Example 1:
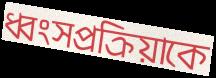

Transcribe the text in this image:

ধ্বংসপ্রক্রিয়াকে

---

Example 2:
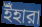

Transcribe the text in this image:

ইঁহারা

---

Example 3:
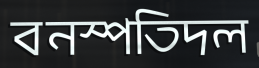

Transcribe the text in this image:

বনস্পতিদল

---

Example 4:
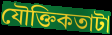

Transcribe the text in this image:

যৌক্তিকতাটা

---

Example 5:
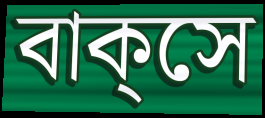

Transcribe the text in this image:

বাক্‌সে